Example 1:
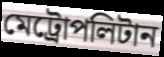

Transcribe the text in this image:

মেট্ৰোপলিটান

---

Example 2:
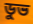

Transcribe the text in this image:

ডুভ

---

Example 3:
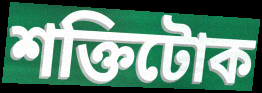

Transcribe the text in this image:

শক্তিটোক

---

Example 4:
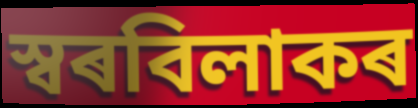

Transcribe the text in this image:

স্বৰবিলাকৰ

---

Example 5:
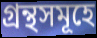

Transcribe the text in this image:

গ্ৰন্থসমূহে